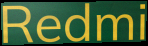
Redmi